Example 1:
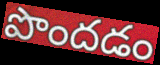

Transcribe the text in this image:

పొందడం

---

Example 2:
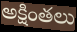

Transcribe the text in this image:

అక్షింతలు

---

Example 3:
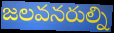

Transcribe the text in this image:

జలవనరుల్ని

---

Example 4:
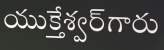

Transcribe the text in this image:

యుక్తేశ్వర్‌గారు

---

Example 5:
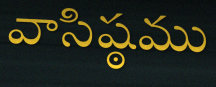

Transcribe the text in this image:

వాసిష్ఠము